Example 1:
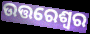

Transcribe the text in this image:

ଉତ୍ତରେଶ୍ୱର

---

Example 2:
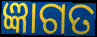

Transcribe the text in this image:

ଜ୍ଞାଗତ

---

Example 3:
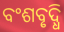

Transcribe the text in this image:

ବଂଶବୃଦ୍ଧି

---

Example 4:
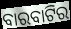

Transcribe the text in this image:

ବାରବାଟିର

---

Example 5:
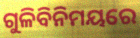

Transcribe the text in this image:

ଗୁଳିବିନିମୟରେ